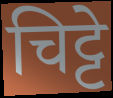
चिट्टे